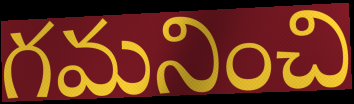
గమనించి